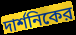
দার্শনিকের